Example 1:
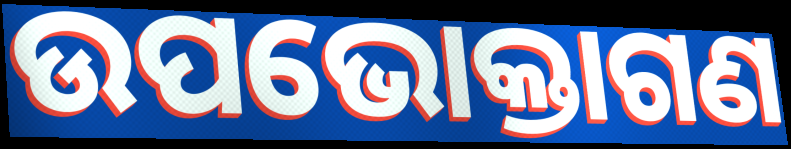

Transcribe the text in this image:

ଉପଭୋକ୍ତାଗଣ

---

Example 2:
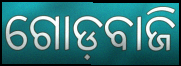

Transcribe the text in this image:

ଗୋଡ଼ବାଜି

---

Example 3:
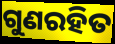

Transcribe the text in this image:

ଗୁଣରହିତ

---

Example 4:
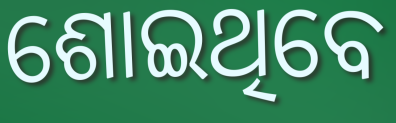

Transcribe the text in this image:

ଶୋଇଥିବେ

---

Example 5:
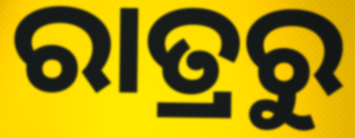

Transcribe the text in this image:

ରାତ୍ରରୁ